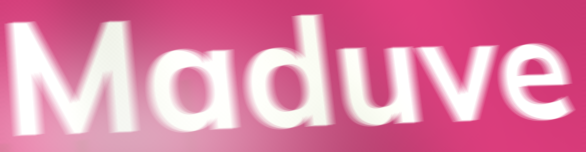
Maduve